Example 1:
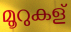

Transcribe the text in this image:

മൂറുകള്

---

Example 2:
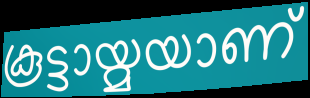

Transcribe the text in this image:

കൂട്ടായ്മയാണ്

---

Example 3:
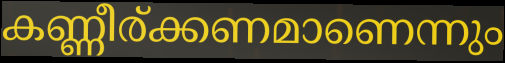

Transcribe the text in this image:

കണ്ണീര്ക്കണമാണെന്നും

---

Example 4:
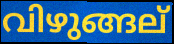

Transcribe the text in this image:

വിഴുങ്ങല്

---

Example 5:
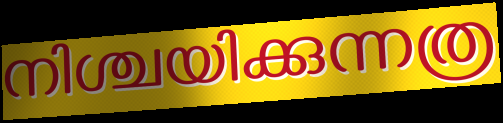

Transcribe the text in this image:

നിശ്ചയിക്കുന്നത്ര